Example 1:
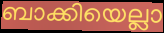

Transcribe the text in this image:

ബാക്കിയെല്ലാ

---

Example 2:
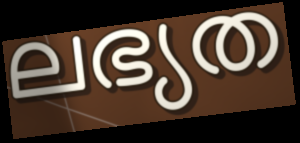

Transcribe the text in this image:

ലഭ്യത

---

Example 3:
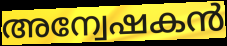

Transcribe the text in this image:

അന്വേഷകൻ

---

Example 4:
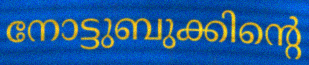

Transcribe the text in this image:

നോട്ടുബുക്കിന്റെ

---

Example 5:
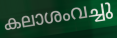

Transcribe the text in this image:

കലാശംവച്ചു